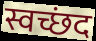
स्वच्छंद